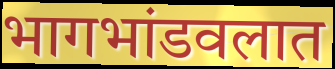
भागभांडवलात